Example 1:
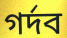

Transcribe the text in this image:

গর্দব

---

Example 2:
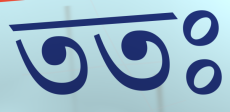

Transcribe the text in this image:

ততঃ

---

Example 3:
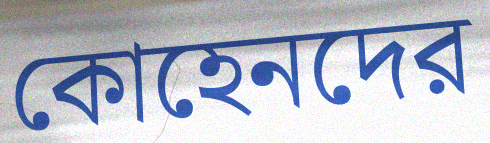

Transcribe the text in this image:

কোহেনদের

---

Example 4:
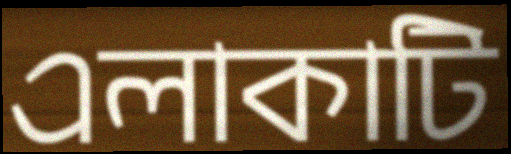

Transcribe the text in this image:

এলাকাটি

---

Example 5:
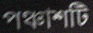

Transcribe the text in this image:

পঞ্চাশটি